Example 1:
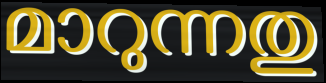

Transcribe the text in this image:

മാറുന്നതു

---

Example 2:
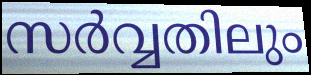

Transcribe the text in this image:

സർവ്വതിലും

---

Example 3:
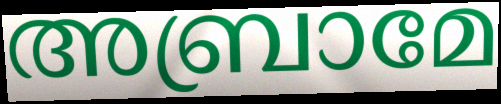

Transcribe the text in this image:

അബ്രാമേ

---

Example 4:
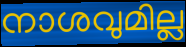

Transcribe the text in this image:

നാശവുമില്ല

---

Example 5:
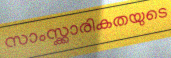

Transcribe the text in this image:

സാംസ്ക്കാരികതയുടെ